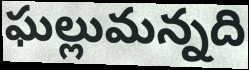
ఘల్లుమన్నది